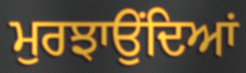
ਮੁਰਝਾਉਂਦਿਆਂ